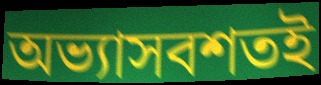
অভ্যাসবশতই